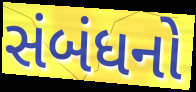
સંબંધનો